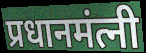
प्रधानमंत्नी